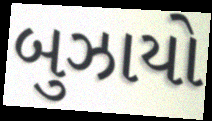
બુઝાયો